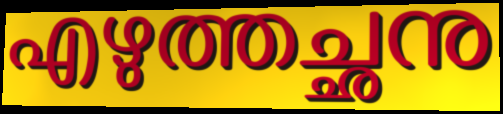
എഴുത്തച്ഛനു